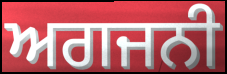
ਅਗਜਨੀ